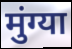
मुंग्या